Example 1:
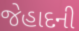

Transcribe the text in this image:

જેહાદની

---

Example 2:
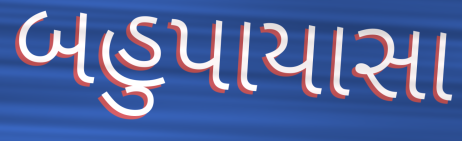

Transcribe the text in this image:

બહુપાયાસા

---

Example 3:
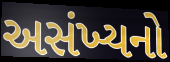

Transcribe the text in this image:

અસંખ્યનો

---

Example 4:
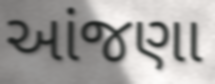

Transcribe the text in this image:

આંજણા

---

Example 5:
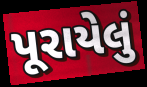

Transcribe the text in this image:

પૂરાયેલું